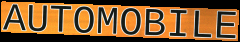
AUTOMOBILE